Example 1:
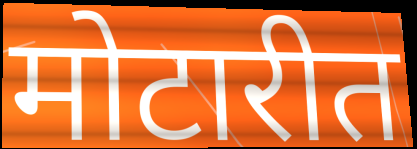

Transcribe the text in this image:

मोटारीत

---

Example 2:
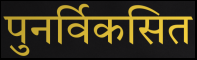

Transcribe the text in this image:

पुनर्विकसित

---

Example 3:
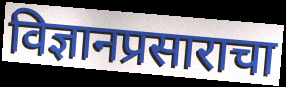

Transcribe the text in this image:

विज्ञानप्रसाराचा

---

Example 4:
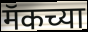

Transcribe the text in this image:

मॅकच्या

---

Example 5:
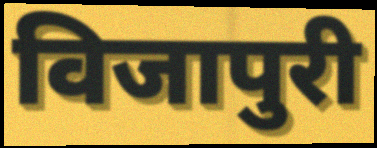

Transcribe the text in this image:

विजापुरी